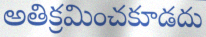
అతిక్రమించకూడదు